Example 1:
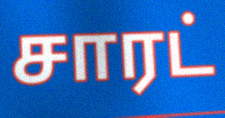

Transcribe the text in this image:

சாரட்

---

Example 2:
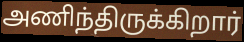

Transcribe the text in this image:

அணிந்திருக்கிறார்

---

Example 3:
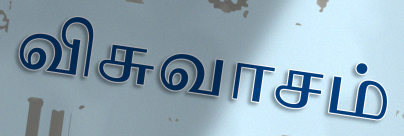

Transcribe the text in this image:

விசுவாசம்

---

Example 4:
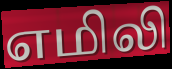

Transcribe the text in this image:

எமிலி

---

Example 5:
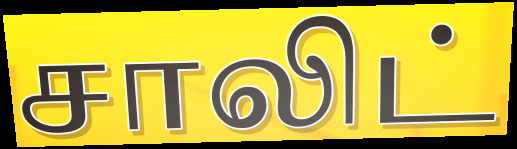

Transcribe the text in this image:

சாலிட்